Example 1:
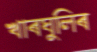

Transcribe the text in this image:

খাৰঘুলিৰ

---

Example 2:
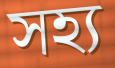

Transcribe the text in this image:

সহ্য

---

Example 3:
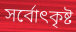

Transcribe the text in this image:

সৰ্বোৎকৃষ্ট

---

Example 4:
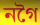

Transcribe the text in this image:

নগৈ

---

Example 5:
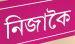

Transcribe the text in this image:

নিজাকৈ